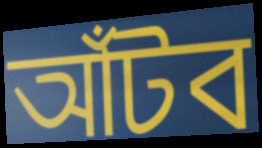
আঁটব